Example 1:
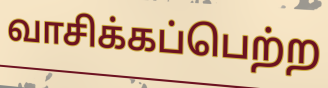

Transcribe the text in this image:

வாசிக்கப்பெற்ற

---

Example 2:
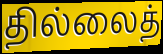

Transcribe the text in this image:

தில்லைத்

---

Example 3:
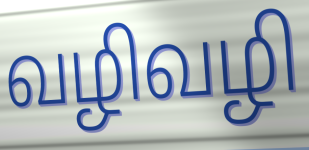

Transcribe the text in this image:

வழிவழி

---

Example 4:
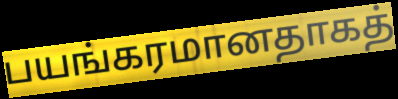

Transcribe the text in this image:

பயங்கரமானதாகத்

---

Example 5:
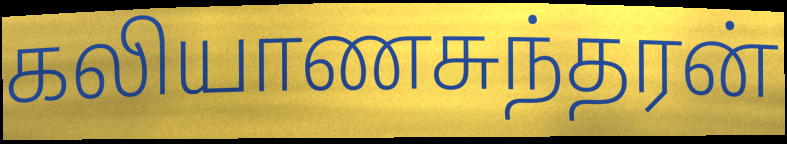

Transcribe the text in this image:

கலியாணசுந்தரன்